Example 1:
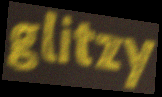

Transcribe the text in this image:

glitzy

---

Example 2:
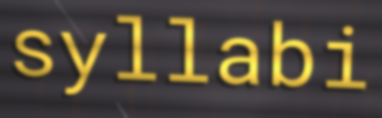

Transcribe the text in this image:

syllabi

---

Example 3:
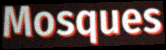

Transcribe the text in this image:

Mosques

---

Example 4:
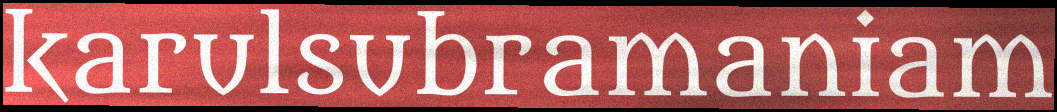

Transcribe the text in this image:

karulsubramaniam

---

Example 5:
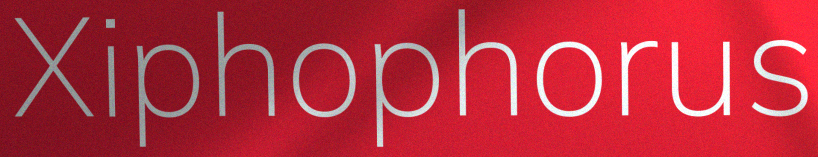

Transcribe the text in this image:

Xiphophorus